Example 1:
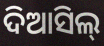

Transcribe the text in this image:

ଦିଆସିଲ୍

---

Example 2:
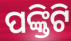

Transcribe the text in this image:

ପଙ୍କ୍ତିଟି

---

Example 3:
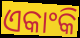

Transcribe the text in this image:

ଏକାଂକି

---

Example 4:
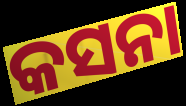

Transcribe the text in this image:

କସନା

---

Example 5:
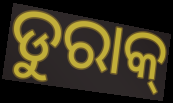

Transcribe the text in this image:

ଡୁରାକ୍